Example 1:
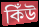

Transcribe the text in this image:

কিঁউ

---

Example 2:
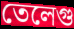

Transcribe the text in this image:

তেলেগু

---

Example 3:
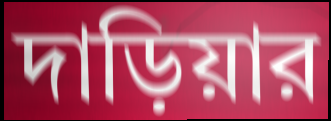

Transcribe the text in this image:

দাড়িয়ার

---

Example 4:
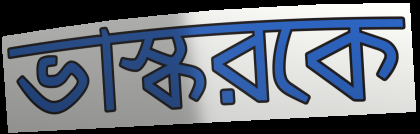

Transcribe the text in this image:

ভাস্করকে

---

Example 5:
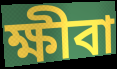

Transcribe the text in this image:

ক্ষীবা